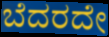
ಬೆದರದೇ